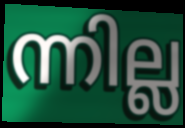
ന്നില്ല